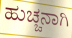
ಹುಚ್ಚನಾಗಿ